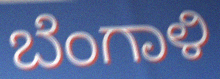
ಬೆಂಗಾಳಿ